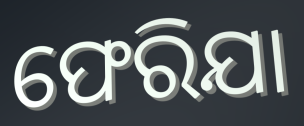
ଫେରିଯା